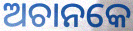
ଅଚାନକେ